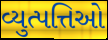
વ્યુત્પત્તિઓ